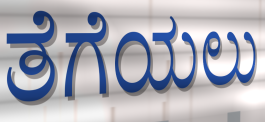
ತೆಗೆಯಲು